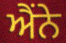
ਐਂਨੇ